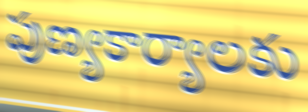
పుణ్యకార్యాలకు